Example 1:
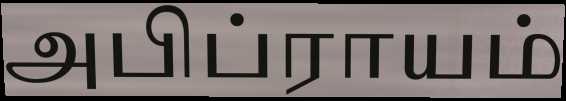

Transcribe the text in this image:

அபிப்ராயம்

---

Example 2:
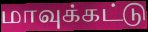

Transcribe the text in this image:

மாவுக்கட்டு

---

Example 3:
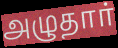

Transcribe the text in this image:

அழுதார்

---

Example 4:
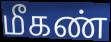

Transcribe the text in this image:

மீகண்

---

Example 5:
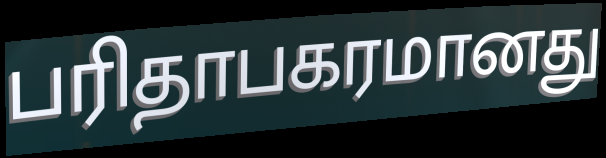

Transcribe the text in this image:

பரிதாபகரமானது